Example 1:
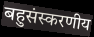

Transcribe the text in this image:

बहुसंस्करणीय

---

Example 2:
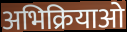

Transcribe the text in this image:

अभिक्रियाओ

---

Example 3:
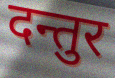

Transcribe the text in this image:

दन्तुर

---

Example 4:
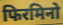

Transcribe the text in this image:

फिरमिनो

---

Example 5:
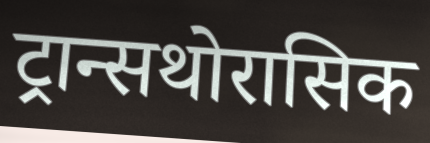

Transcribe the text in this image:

ट्रान्सथोरासिक